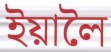
ইয়ালৈ